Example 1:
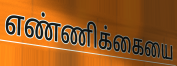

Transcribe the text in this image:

எண்ணிக்கையை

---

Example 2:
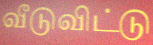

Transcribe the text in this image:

வீடுவிட்டு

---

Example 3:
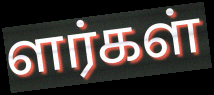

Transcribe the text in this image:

ளர்கள்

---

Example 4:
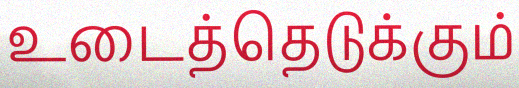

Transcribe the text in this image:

உடைத்தெடுக்கும்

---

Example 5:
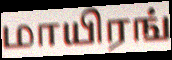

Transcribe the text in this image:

மாயிரங்